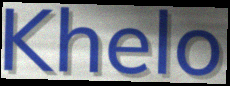
Khelo